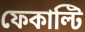
ফেকাল্টি